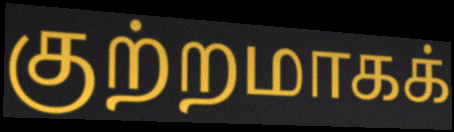
குற்றமாகக்